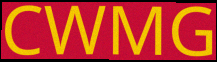
CWMG